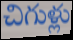
చిగుళ్లు